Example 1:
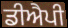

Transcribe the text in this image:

ਡੀਐਪੀ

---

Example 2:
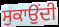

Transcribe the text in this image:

ਸੁਕਾਉਂਦੀ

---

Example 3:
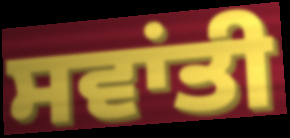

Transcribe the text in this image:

ਸਵਾਂਤੀ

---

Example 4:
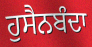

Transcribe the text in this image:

ਹੁਸੈਨਬੰਦਾ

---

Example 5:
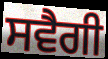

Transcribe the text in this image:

ਸਵੈਗੀ